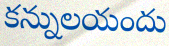
కన్నులయందు